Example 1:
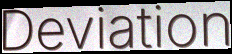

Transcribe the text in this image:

Deviation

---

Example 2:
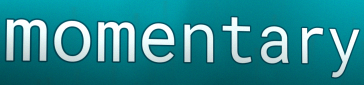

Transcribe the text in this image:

momentary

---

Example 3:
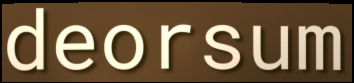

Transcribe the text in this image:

deorsum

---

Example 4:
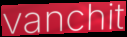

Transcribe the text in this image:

vanchit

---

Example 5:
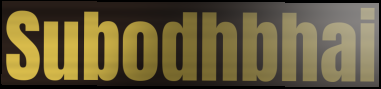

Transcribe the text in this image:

Subodhbhai